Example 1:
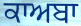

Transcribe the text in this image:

ਕਾਅਬਾ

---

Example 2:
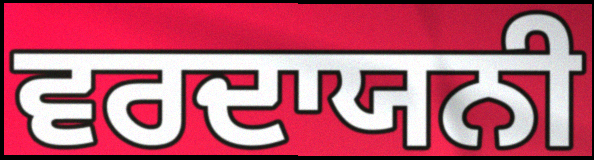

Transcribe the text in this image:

ਵਰਦਾਯਨੀ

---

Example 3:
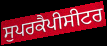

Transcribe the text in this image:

ਸੁਪਰਕੈਪੀਸੀਟਰ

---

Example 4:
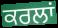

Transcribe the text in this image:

ਕਰਲਾਂ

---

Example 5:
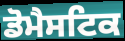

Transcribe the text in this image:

ਡੋਮੈਸਟਿਕ